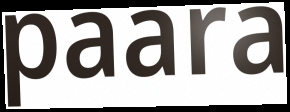
paara